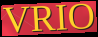
VRIO